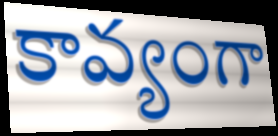
కావ్యంగా